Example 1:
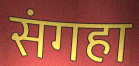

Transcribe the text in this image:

संगहा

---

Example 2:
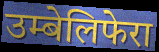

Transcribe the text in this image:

उम्बेलिफेरा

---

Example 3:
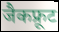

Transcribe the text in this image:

जैकफ्रूट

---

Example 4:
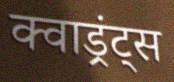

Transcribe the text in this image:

क्वाड्रंट्स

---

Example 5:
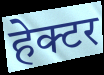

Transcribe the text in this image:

हेक्‍टर